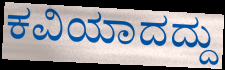
ಕವಿಯಾದದ್ದು